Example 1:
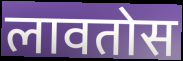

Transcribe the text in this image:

लावतोस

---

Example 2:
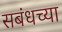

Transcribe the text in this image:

सबंधच्या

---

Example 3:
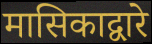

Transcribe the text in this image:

मासिकाद्वारे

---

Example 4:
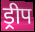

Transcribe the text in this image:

ड्रीप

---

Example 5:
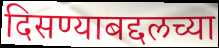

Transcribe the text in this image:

दिसण्याबद्दलच्या